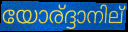
യോര്ദ്ദാനില്